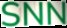
SNN